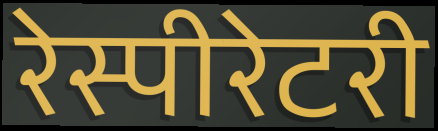
रेस्पीरेटरी